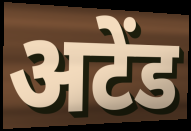
अटेंड